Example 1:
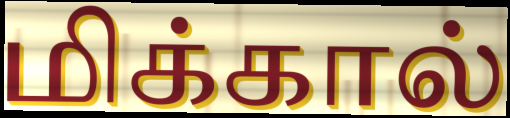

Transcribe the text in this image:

மிக்கால்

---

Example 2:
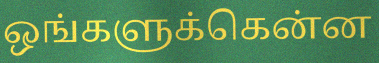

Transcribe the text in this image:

ஒங்களுக்கென்ன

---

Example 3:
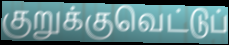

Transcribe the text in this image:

குறுக்குவெட்டுப்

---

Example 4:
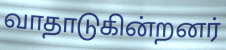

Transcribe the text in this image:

வாதாடுகின்றனர்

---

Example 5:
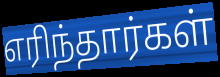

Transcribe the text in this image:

எரிந்தார்கள்